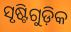
ସୃଷ୍ଟିଗୁଡ଼ିକ